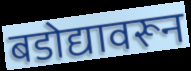
बडोद्यावरून